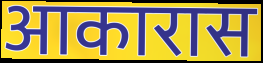
आकारास